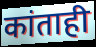
कांताही